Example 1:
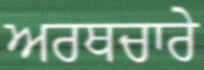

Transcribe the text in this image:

ਅਰਥਚਾਰੇ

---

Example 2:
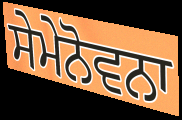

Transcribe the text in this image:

ਸੇਮੇਨੋਵਨਾ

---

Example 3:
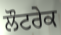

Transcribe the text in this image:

ਲੌਟਰੇਕ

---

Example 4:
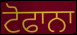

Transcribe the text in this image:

ਟੋਫਾਨਾ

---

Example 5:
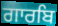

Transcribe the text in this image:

ਗਾਰਬਿ